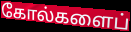
கோல்களைப்